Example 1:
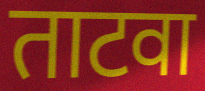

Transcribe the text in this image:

ताटवा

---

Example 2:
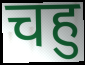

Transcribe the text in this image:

चहु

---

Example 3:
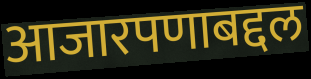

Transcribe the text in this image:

आजारपणाबद्दल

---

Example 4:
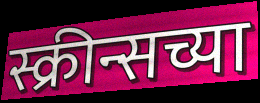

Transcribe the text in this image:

स्क्रीन्सच्या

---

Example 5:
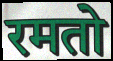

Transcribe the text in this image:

रमतो